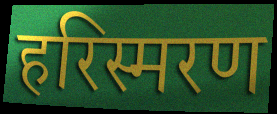
हरिस्मरण